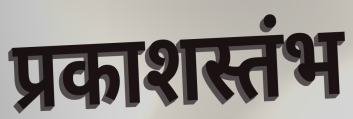
प्रकाशस्तंभ